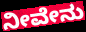
ನೀವೇನು